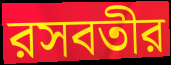
রসবতীর